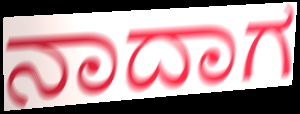
ನಾದಾಗ